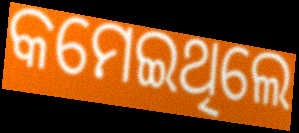
କମେଇଥିଲେ